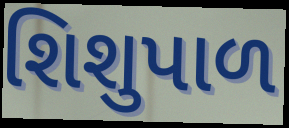
શિશુપાળ